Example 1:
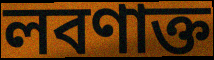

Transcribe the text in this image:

লবণাক্ত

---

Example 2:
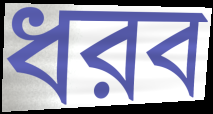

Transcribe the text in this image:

ধরব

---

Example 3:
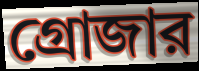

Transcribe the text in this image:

গ্রোজার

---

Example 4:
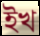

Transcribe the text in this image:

ইখ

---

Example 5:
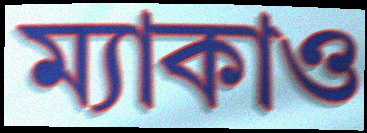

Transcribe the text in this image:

ম্যাকাও